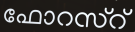
ഫോറസ്റ്